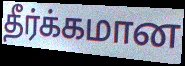
தீர்க்கமான